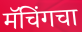
मॅचिंगचा